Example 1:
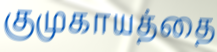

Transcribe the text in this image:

குமுகாயத்தை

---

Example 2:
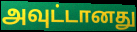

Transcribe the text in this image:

அவுட்டானது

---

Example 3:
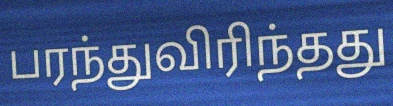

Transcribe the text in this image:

பரந்துவிரிந்தது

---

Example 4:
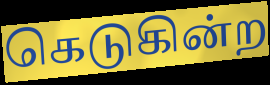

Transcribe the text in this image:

கெடுகின்ற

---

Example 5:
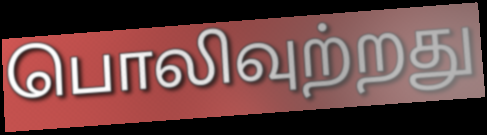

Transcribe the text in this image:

பொலிவுற்றது